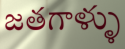
జతగాళ్ళు